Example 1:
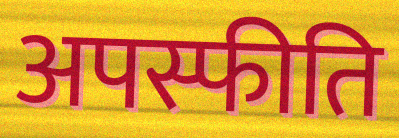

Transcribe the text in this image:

अपस्फीति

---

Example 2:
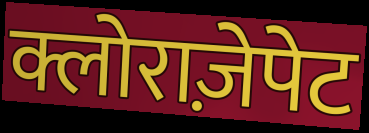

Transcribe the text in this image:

क्लोराज़ेपेट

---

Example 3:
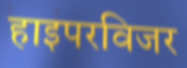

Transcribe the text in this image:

हाइपरविजर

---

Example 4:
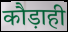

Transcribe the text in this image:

कौड़ाही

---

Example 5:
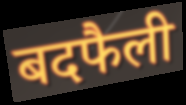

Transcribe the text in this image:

बदफैली